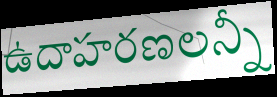
ఉదాహరణలన్నీ